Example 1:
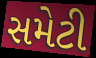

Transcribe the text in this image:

સમેટી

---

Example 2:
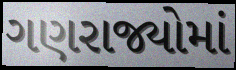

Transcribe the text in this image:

ગણરાજ્યોમાં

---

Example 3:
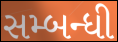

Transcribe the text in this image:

સમ્બન્ધી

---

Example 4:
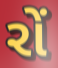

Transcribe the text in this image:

રોં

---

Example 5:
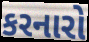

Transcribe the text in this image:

કરનારો